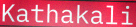
Kathakali